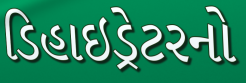
ડિહાઇડ્રેટરનો